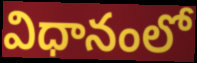
విధానంలో